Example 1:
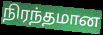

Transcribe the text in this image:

நிரந்தமான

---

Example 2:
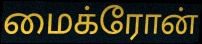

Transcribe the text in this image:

மைக்ரோன்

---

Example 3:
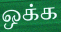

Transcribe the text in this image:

ஒக்க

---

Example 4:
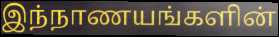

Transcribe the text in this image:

இந்நாணயங்களின்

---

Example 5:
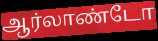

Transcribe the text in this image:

ஆர்லாண்டோ